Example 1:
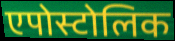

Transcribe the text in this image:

एपोस्टोलिक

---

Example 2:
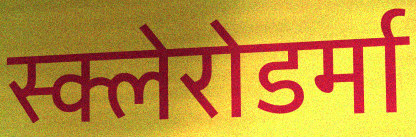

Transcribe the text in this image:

स्क्लेरोडर्मा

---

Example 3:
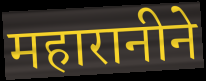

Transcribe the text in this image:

महारानीने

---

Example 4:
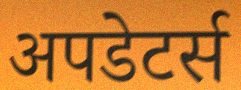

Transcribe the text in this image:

अपडेटर्स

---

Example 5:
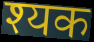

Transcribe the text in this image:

श्यक